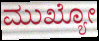
ಮುಖ್ಯೋ